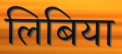
लिबिया